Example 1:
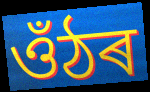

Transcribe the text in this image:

ওঁঠৰ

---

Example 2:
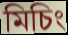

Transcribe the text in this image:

মিচিং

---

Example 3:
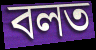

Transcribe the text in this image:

বলত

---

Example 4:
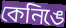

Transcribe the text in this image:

কেনিঙে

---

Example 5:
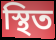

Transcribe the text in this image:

স্থিত